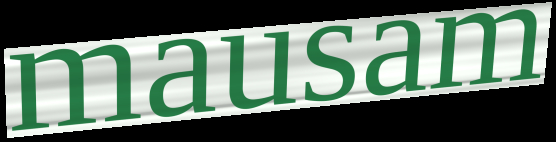
mausam